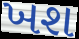
ખશ